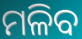
ମଳିବ